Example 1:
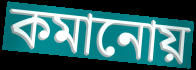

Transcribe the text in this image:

কমানোয়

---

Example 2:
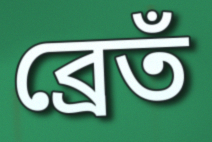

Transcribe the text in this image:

ব্রেতঁ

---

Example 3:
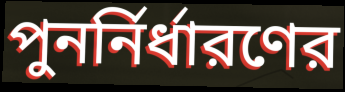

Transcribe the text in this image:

পুনর্নির্ধারণের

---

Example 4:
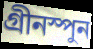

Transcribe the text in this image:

গ্রীনস্পুন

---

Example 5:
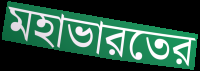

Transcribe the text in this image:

মহাভারতের